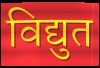
विद्युत